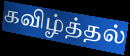
கவிழ்த்தல்